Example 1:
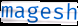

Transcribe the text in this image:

magesh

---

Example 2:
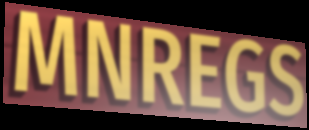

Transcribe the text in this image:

MNREGS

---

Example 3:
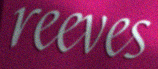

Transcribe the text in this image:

reeves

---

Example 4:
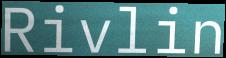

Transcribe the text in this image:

Rivlin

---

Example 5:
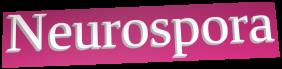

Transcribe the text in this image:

Neurospora